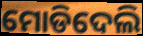
ମୋଡିଦେଲି